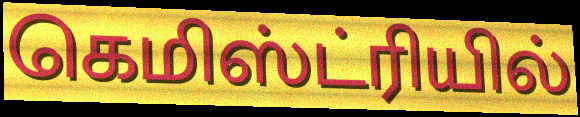
கெமிஸ்ட்ரியில்